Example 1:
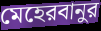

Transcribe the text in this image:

মেহেরবানুর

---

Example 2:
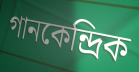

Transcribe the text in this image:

গানকেন্দ্রিক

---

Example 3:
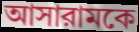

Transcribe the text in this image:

আসারামকে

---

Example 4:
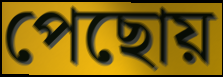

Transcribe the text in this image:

পেছোয়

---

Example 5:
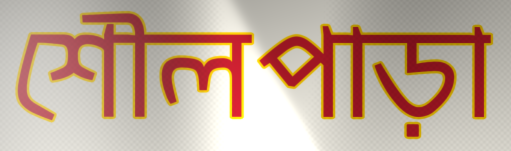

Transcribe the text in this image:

শৌলপাড়া